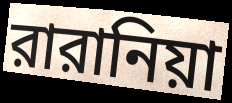
রারানিয়া